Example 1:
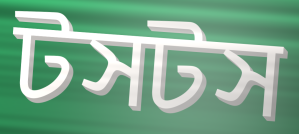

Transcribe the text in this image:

টসটস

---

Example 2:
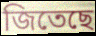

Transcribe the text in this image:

জিতেছে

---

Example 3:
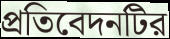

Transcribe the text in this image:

প্রতিবেদনটির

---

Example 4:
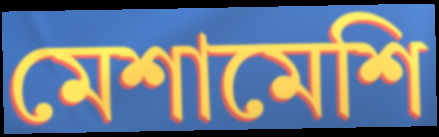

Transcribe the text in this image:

মেশামেশি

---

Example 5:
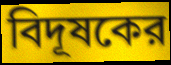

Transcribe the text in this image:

বিদূষকের